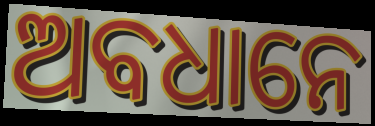
ଅବଧାନେ